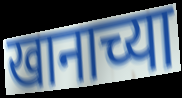
खानाच्या